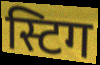
स्टिग